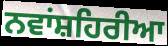
ਨਵਾਂਸ਼ਹਿਰੀਆ